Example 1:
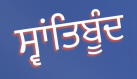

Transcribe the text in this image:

ਸ੍ਵਾਂਤਿਬੂੰਦ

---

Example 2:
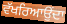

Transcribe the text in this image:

ਵੱਖਰਿਆਉਂਦਾ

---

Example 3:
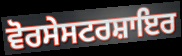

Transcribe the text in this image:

ਵੋਰਸੇਸਟਰਸ਼ਾਇਰ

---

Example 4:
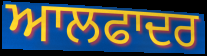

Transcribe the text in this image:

ਆਲਫਾਦਰ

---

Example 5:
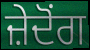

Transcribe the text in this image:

ਜ਼ੇਦੋਂਗ